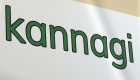
kannagi